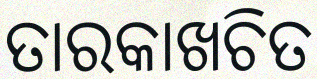
ତାରକାଖଚିତ